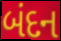
બંદન